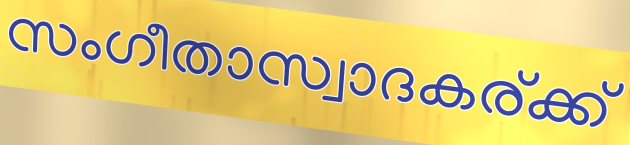
സംഗീതാസ്വാദകര്ക്ക്